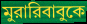
মুরারিবাবুকে